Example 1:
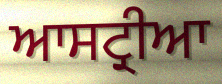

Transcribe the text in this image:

ਆਸਟ੍ਰੀਆ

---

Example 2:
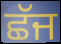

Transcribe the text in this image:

ਛੱਜ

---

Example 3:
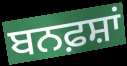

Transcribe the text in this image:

ਬਨਫ਼ਸ਼ਾਂ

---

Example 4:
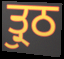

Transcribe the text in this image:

ਤ੍ਰੁਠ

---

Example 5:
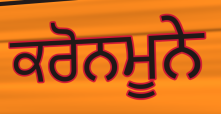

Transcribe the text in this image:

ਕਰੋਨਮੂਨੇ